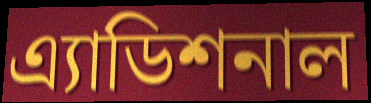
এ্যাডিশনাল